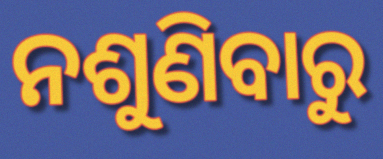
ନଶୁଣିବାରୁ